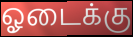
ஓடைக்கு